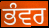
ਭੰਵਰ